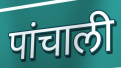
पांचाली